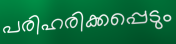
പരിഹരിക്കപ്പെടും